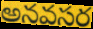
అనవసర